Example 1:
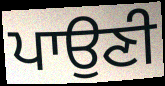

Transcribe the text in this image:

ਪਾਉਣੀ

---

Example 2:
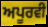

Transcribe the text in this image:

ਅਪੂਰਵੀ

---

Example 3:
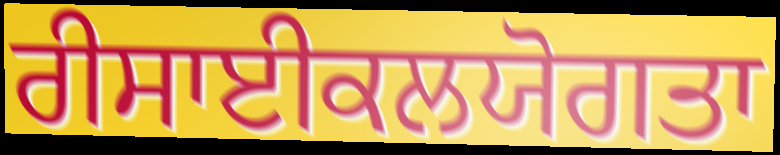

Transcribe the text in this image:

ਰੀਸਾਈਕਲਯੋਗਤਾ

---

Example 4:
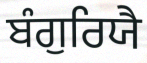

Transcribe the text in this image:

ਬੰਗੁਰਿਯੈ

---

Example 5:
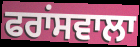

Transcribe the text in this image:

ਫਰਾਂਸਵਾਲਾ